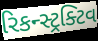
રિકન્સ્ટ્રક્ટિવ